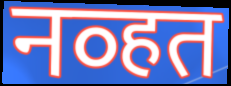
नव्हत